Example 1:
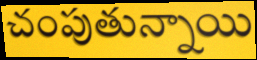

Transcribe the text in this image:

చంపుతున్నాయి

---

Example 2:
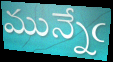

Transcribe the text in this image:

మున్నేఁ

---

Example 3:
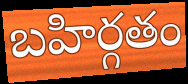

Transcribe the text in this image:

బహిర్గతం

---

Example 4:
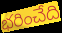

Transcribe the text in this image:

భరించేది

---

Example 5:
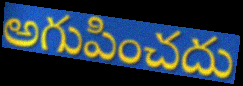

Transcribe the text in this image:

అగుపించదు